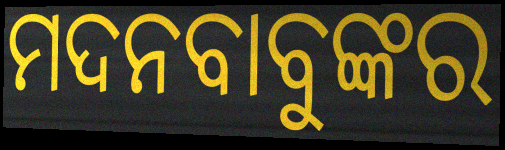
ମଦନବାବୁଙ୍କର